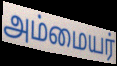
அம்மையர்